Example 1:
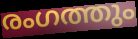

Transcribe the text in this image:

രംഗത്തും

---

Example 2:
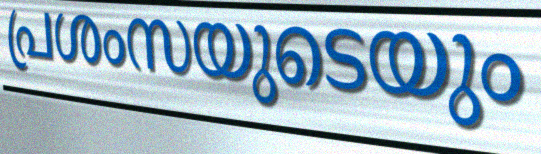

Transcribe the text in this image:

പ്രശംസയുടെയും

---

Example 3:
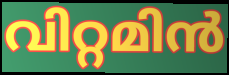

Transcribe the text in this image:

വിറ്റമിൻ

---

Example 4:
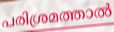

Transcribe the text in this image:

പരിശ്രമത്താൽ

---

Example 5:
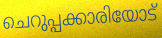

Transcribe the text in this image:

ചെറുപ്പക്കാരിയോട്